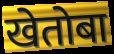
खेतोबा